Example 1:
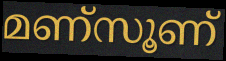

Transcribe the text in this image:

മണ്സൂണ്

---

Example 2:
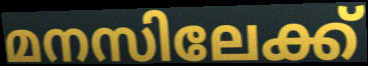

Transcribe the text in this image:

മനസിലേക്ക്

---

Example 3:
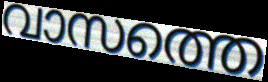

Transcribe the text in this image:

വാസത്തെ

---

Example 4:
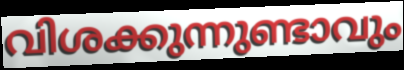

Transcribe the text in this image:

വിശക്കുന്നുണ്ടാവും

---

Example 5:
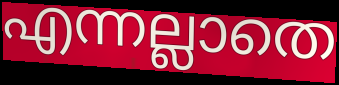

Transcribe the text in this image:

എന്നല്ലാതെ